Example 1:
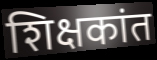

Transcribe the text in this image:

शिक्षकांत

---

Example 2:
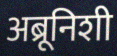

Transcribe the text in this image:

अब्रूनिशी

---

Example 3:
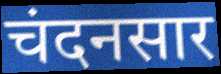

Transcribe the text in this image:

चंदनसार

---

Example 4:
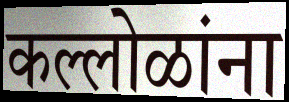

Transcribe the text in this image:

कल्लोळांना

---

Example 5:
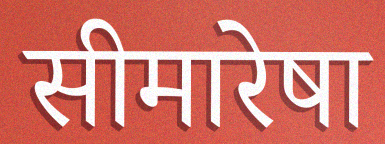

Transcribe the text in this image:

सीमारेषा